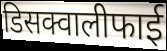
डिसक्वालीफाई